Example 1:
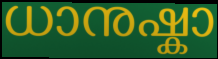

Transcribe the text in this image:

ധാനുഷ്കാ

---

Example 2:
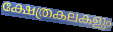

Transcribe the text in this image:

ക്ഷേത്രകലകളും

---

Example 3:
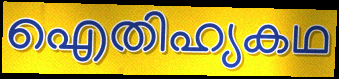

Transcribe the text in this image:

ഐതിഹ്യകഥ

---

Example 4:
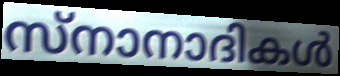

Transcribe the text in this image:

സ്നാനാദികൾ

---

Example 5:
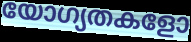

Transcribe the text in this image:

യോഗ്യതകളോ